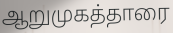
ஆறுமுகத்தாரை